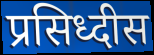
प्रसिध्दीस